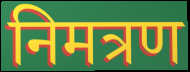
निमत्रण